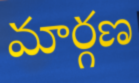
మార్గణ